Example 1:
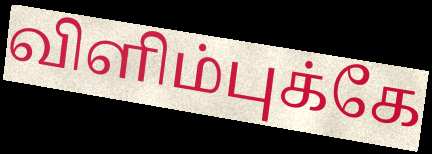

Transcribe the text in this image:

விளிம்புக்கே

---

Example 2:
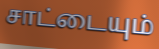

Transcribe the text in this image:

சாட்டையும்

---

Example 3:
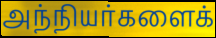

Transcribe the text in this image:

அந்நியர்களைக்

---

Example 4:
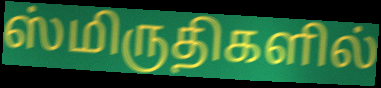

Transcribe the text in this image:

ஸ்மிருதிகளில்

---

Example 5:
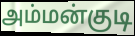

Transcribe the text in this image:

அம்மன்குடி